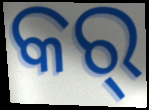
କର୍